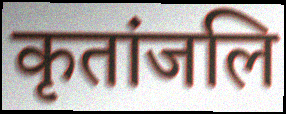
कृतांजलि